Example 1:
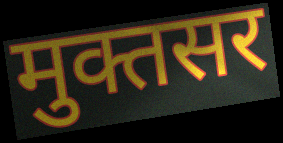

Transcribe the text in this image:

मुक्तसर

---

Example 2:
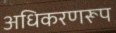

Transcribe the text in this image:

अधिकरणरूप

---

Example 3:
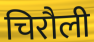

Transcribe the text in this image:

चिरौली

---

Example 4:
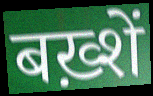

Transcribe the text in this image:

बख़्शें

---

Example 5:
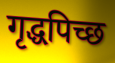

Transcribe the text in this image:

गृद्धपिच्छ